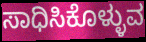
ಸಾಧಿಸಿಕೊಳ್ಳುವ